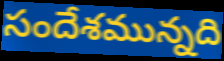
సందేశమున్నది